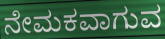
ನೇಮಕವಾಗುವ